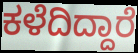
ಕಳೆದಿದ್ದಾರೆ